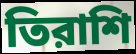
তিরাশি